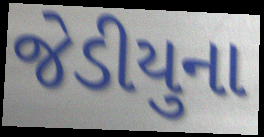
જેડીયુના